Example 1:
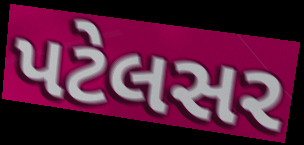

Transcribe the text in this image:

પટેલસર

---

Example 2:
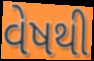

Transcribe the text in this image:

વેષથી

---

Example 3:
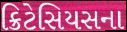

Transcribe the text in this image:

ક્રિટેસિયસના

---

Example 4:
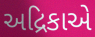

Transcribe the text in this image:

અદ્રિકાએ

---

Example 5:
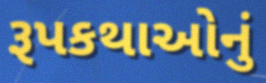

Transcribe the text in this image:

રૂપકથાઓનું